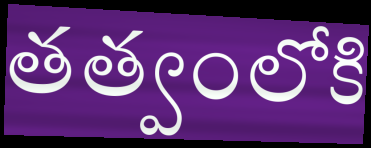
తత్వంలోకి